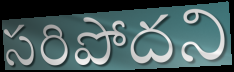
సరిపోదని